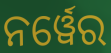
ନର୍ୱେର